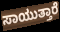
ಸಾಯುತ್ತಾರೆ